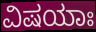
ವಿಷಯಾಃ